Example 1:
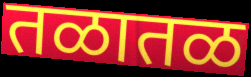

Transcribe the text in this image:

तळातळ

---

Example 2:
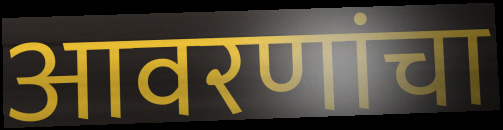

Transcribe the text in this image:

आवरणांचा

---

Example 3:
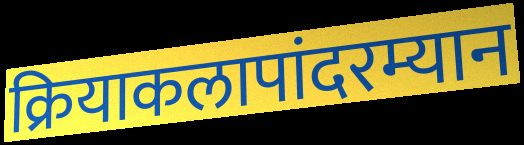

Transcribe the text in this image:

क्रियाकलापांदरम्यान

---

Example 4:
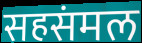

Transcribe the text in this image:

सहसंमल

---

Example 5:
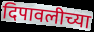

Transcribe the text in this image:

दिपावलीच्या